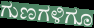
ಗುಣಗಳಿಗೂ